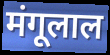
मंगूलाल